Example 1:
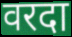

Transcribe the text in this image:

वरदा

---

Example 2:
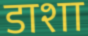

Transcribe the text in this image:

डाशा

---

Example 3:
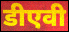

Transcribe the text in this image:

डीएवी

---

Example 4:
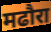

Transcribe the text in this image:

मढौरा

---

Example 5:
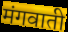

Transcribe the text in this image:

मंगवाती